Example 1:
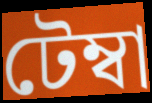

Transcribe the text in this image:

টেম্বা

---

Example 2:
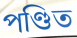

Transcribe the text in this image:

পণ্ডিত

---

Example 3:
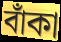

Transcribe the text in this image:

বাঁকা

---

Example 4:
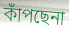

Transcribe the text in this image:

কাঁপছেনা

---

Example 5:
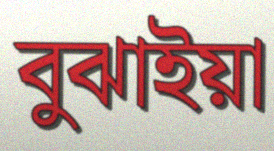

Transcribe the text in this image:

বুঝাইয়া